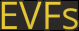
EVFs